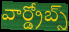
వార్డ్రోబ్స్